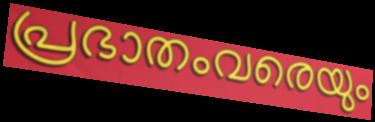
പ്രഭാതംവരെയും